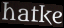
hatke